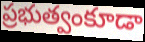
ప్రభుత్వంకూడా